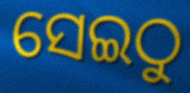
ସେଇଠୁ